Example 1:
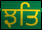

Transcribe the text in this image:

ਝਤਿ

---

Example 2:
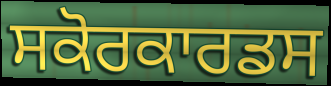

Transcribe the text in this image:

ਸਕੋਰਕਾਰਡਸ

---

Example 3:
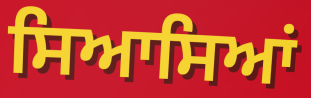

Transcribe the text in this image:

ਸਿਆਸਿਆਂ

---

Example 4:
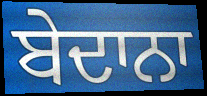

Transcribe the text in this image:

ਬੇਦਾਨਾ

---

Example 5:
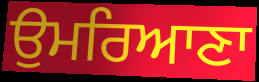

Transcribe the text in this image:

ਉਮਰਿਆਣਾ